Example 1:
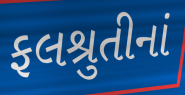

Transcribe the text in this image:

ફલશ્રુતીનાં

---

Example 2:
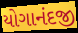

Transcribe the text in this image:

યોગાનંદજી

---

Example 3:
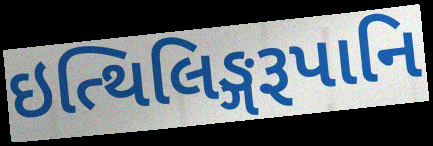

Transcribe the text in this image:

ઇત્થિલિઙ્ગરૂપાનિ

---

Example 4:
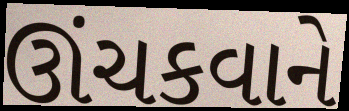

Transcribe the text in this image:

ઊંચકવાને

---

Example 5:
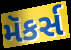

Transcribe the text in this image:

મૅકર્સ